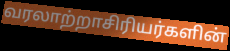
வரலாற்றாசிரியர்களின்